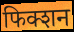
फिक्शन